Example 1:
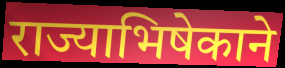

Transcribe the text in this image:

राज्याभिषेकाने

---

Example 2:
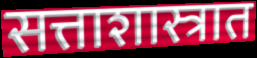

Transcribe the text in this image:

सत्ताशास्त्रात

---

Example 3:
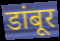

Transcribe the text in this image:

डांबूर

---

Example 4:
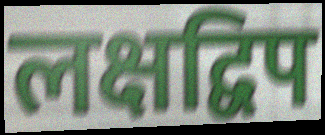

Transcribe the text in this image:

लक्षद्विप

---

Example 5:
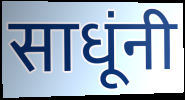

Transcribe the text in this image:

साधूंनी